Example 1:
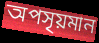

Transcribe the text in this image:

অপসৃয়মান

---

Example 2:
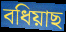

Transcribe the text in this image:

বধিয়াছ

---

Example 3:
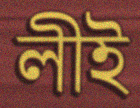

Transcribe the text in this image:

লীই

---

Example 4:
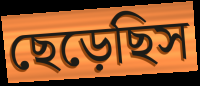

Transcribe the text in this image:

ছেড়েছিস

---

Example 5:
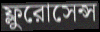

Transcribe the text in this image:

ফ্লুরোসেন্স